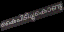
കൈപിടിച്ചുകൊണ്ടു